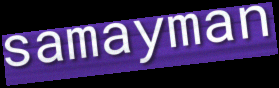
samayman